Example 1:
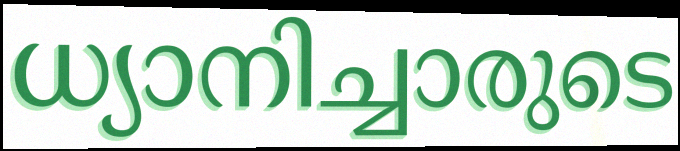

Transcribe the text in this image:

ധ്യാനിച്ചാരുടെ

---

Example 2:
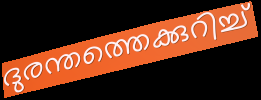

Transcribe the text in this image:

ദുരന്തത്തെക്കുറിച്ച്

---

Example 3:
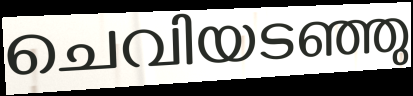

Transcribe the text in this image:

ചെവിയടഞ്ഞു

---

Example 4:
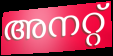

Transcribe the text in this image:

അനറ്റ്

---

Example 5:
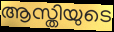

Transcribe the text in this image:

ആസ്തിയുടെ